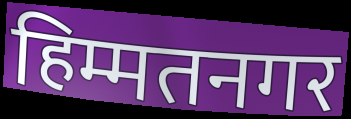
हिम्‍मतनगर